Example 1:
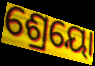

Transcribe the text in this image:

ଶ୍ରେୟୋ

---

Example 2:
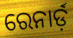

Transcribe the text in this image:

ରେନାର୍ଡ଼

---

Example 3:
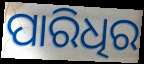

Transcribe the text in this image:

ପାରିଧିର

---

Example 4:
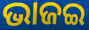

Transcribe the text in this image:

ଭାଜଇ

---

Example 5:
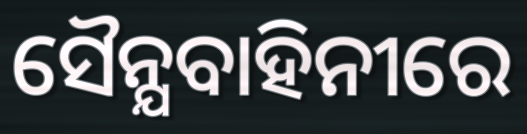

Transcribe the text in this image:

ସୈନ୍ଯବାହିନୀରେ